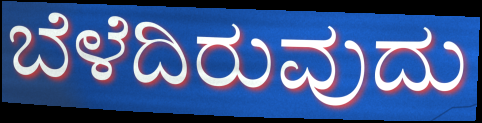
ಬೆಳೆದಿರುವುದು